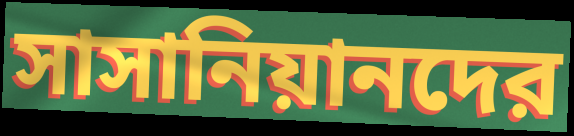
সাসানিয়ানদের